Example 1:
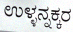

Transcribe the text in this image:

ಉಳ್ಳನ್ನಕ್ಕರ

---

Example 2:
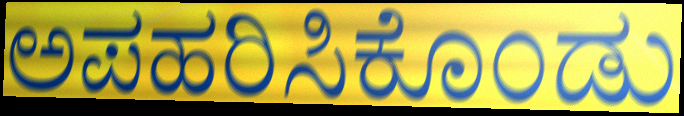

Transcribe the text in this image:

ಅಪಹರಿಸಿಕೊಂಡು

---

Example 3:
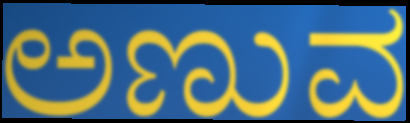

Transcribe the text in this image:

ಅಣುವ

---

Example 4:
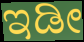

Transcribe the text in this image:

ಇಡೀ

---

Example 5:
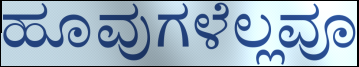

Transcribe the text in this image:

ಹೂವುಗಳೆಲ್ಲವೂ